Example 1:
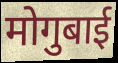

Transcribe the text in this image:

मोगुबाई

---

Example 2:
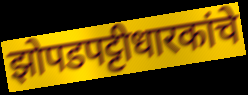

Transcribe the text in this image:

झोपडपट्टीधारकांचे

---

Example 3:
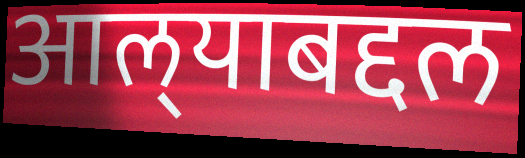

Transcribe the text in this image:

आल्याबद्दल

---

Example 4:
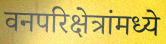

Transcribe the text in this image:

वनपरिक्षेत्रांमध्ये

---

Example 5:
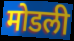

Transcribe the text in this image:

मोडली